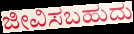
ಜೀವಿಸಬಹುದು